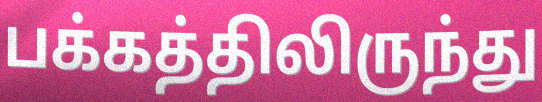
பக்கத்திலிருந்து